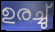
ഉരച്ചു്